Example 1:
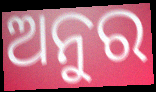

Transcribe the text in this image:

ଅନୁର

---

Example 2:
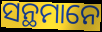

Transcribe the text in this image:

ସନ୍ଥମାନେ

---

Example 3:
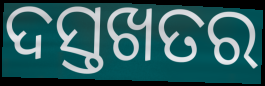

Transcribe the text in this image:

ଦସ୍ତଖତର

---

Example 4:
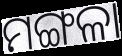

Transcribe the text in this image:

ମଙ୍ଗଳା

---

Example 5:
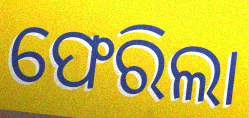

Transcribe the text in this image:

ଫେରିଲା